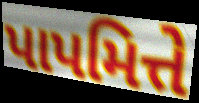
પાપમિત્તે